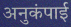
अनुकंपाई